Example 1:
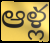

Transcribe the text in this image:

ఆళ్ల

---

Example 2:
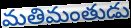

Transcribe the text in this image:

మతిమంతుడు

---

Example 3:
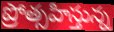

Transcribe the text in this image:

ప్రోత్సహిస్తున్న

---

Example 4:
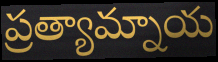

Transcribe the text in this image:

ప్రత్యామ్నాయ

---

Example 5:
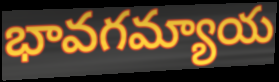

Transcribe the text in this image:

భావగమ్యాయ